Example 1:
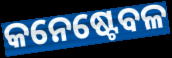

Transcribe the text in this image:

କନେଷ୍ଟେବଳ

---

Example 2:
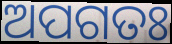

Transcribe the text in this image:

ଅପଗତଃ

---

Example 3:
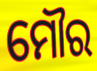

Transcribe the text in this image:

ମୌର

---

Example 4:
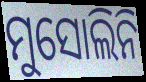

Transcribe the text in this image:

ମୁସୋଲିନି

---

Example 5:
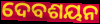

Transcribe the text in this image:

ଦେବଶୟନ